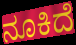
ನೂಕಿದೆ